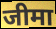
जीमा